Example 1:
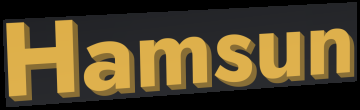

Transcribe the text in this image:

Hamsun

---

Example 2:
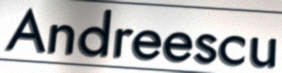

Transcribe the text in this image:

Andreescu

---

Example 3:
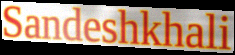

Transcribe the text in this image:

Sandeshkhali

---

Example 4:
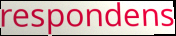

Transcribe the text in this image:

respondens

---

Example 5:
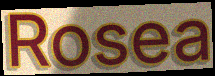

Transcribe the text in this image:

Rosea